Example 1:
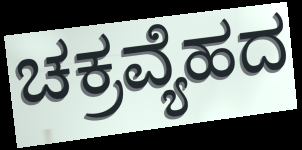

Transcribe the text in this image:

ಚಕ್ರವ್ಯೆಹದ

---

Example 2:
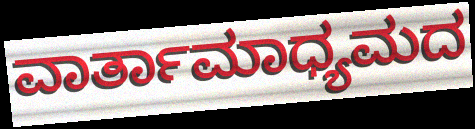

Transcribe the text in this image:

ವಾರ್ತಾಮಾಧ್ಯಮದ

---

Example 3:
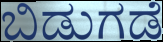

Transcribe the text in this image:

ಬಿಡುಗಡೆ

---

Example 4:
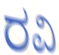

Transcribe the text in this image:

ರವಿ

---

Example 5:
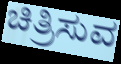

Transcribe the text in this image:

ಚಿತ್ರಿಸುವ